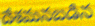
దేశమనబడిన